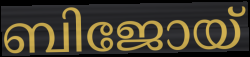
ബിജോയ്